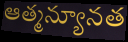
ఆత్మన్యూనత